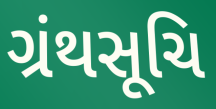
ગ્રંથસૂચિ